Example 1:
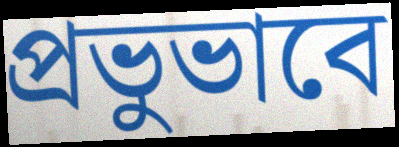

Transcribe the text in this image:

প্রভুভাবে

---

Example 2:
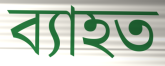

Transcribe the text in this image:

ব্যাহত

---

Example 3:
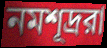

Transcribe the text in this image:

নমশূদ্ররা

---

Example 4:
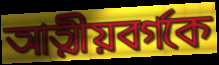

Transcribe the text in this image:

আত্মীয়বর্গকে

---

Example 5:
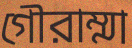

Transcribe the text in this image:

গৌরাম্মা